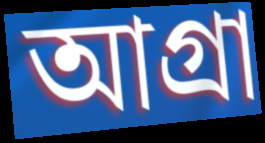
আগ্রা